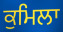
ਕੁਮਿਲਾ